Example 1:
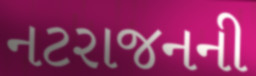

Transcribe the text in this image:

નટરાજનની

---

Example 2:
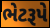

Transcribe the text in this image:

ભેટરૂપે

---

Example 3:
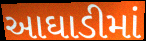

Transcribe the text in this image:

આઘાડીમાં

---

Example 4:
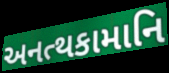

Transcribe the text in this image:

અનત્થકામાનિ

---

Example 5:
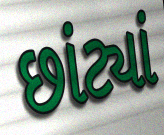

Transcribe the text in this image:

છાંટ્યાં